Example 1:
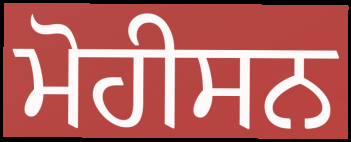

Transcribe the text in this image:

ਮੋਹੀਸਨ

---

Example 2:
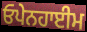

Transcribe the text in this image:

ਓਪੇਨਹਾਈਮ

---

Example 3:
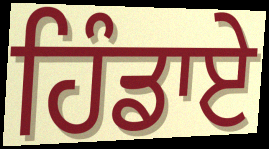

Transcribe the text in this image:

ਹਿੰਡਾਏ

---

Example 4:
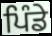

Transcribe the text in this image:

ਪਿੰਡੇ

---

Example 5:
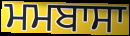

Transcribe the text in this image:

ਮਮਬਾਸਾ